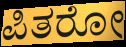
ಪಿತರೋ